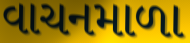
વાચનમાળા